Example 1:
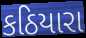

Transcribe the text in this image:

કઠિયારા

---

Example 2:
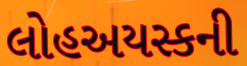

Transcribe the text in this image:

લોહઅયસ્કની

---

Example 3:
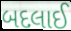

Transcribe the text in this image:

બદલાઈ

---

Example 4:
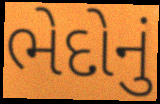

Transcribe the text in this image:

ભેદોનું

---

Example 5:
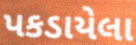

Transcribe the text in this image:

પકડાયેલા